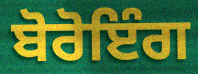
ਬੋਰੋਇੰਗ